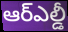
ఆర్ఎల్డీ